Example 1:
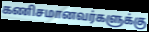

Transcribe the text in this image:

கணிசமானவர்களுக்கு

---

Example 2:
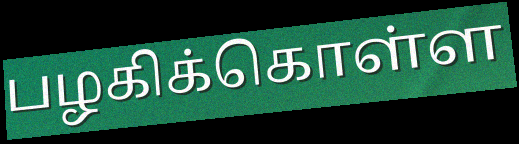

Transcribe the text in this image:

பழகிக்கொள்ள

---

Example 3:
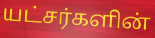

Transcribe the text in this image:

யட்சர்களின்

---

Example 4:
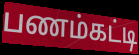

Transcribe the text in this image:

பணம்கட்டி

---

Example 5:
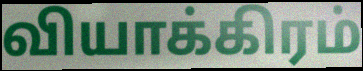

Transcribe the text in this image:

வியாக்கிரம்